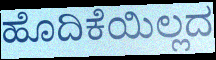
ಹೊದಿಕೆಯಿಲ್ಲದ